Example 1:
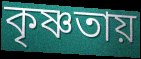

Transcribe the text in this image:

কৃষ্ণতায়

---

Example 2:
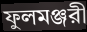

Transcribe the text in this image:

ফুলমঞ্জরী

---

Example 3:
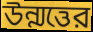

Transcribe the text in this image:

উন্মত্তের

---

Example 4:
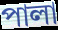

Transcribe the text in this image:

পালা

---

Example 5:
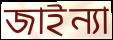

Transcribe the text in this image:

জাইন্যা